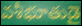
వశీభూతుడై